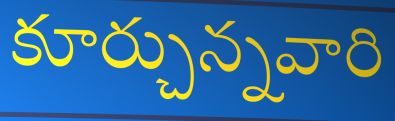
కూర్చున్నవారి